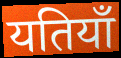
यतियाँ